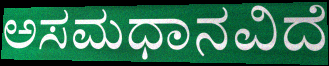
ಅಸಮಧಾನವಿದೆ